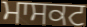
ਮਾਸਕਟ